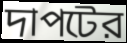
দাপটের